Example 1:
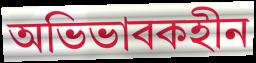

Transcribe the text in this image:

অভিভাবকহীন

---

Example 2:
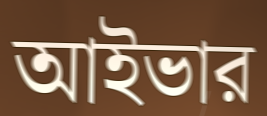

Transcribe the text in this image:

আইভার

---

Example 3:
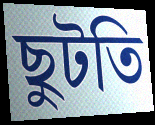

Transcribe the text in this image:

ছুটতি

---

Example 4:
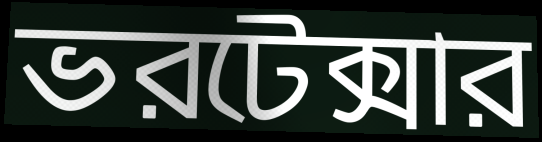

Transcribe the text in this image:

ভরটেক্সার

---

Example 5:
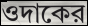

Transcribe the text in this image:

ওদাকের